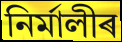
নিৰ্মালীৰ